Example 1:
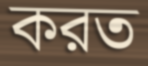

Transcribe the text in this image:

করত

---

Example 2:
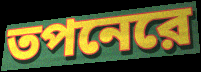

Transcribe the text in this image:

তপনেরে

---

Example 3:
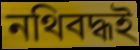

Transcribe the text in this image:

নথিবদ্ধই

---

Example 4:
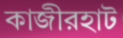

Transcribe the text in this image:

কাজীরহাট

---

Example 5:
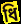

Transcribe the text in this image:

ধি